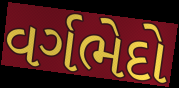
વર્ગભેદો